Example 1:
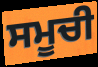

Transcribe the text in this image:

ਸਮੂਚੀ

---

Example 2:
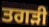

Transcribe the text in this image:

ਤਗੜੀ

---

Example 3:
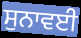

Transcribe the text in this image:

ਸੁਨਾਵਈ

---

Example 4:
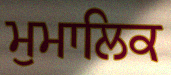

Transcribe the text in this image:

ਮੁਮਾਲਿਕ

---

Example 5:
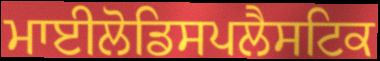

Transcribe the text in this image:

ਮਾਈਲੋਡਿਸਪਲੈਸਟਿਕ